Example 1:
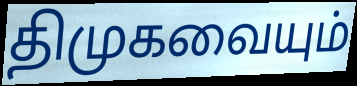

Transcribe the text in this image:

திமுகவையும்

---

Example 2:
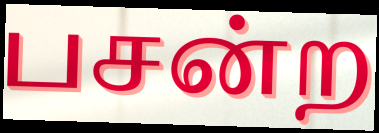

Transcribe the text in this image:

பசன்ற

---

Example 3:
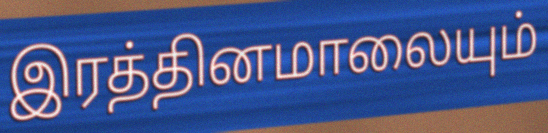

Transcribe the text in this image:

இரத்தினமாலையும்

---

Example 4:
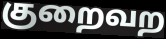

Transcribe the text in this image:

குறைவற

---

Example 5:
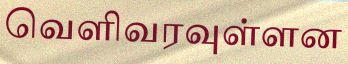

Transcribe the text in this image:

வெளிவரவுள்ளன